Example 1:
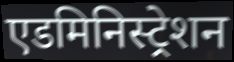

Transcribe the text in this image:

एडमिनिस्ट्रेशन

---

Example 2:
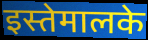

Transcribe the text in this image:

इस्तेमालके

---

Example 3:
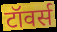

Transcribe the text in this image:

टॉवर्स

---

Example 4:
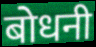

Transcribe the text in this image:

बोधनी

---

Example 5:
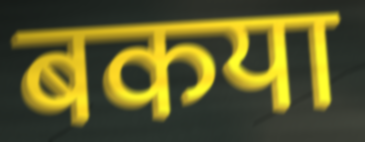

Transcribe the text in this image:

बकया